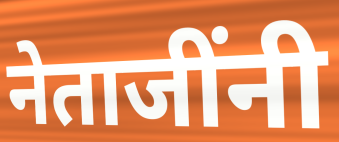
नेताजींनी